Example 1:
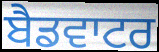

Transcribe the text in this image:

ਬੈਡਵਾਟਰ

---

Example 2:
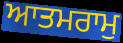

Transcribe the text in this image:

ਆਤਮਰਾਮੁ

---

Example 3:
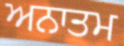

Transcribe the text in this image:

ਅਨਾਤਮ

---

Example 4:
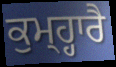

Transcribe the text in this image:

ਕੁਮ੍ਹ੍ਹਾਰੈ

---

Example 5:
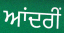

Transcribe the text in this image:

ਆਂਦਰੀਂ